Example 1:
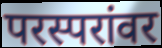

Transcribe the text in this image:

परस्परांवर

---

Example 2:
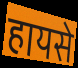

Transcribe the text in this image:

हायसे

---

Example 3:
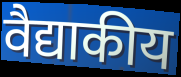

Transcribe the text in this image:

वैद्याकीय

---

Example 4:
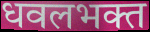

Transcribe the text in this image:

धवलभक्त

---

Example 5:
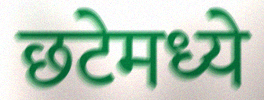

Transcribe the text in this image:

छटेमध्ये